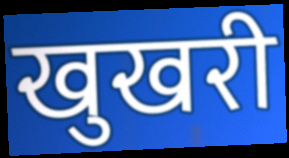
खुखरी